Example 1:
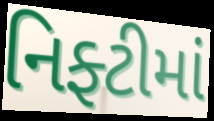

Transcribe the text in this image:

નિફ્ટીમાં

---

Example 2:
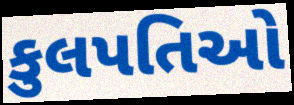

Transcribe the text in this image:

કુલપતિઓ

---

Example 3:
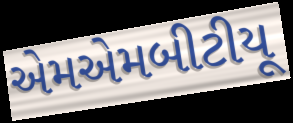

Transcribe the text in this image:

એમએમબીટીયૂ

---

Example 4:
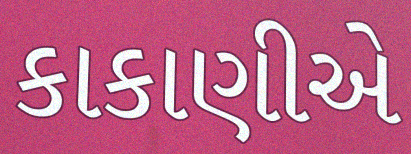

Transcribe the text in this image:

કાકાણીએ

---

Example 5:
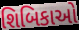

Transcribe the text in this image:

શિબિકાઓ